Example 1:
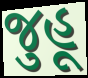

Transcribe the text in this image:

જુહૂ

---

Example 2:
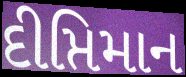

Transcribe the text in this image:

દીપ્તિમાન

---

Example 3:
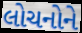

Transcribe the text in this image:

લોચનોને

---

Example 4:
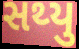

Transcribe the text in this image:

સથ્યુ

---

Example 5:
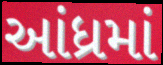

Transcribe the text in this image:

આંધ્રમાં